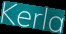
Kerla